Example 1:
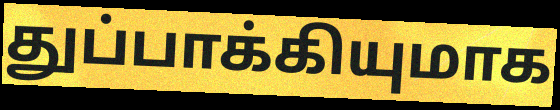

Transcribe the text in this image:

துப்பாக்கியுமாக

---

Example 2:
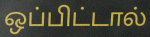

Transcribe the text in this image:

ஒப்பிட்டால்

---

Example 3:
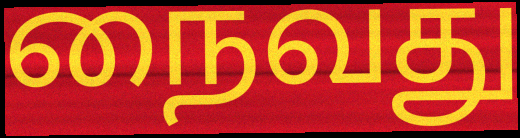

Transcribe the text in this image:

நைவது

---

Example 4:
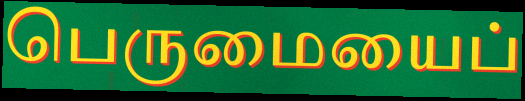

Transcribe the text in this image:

பெருமையைப்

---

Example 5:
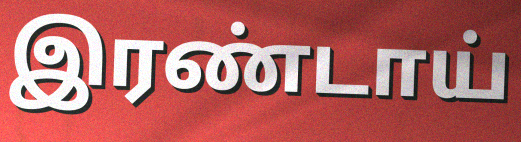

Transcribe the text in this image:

இரண்டாய்